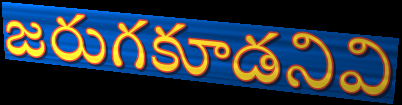
జరుగకూడనివి